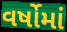
વર્ષોમાં